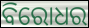
ବିରୋଧର